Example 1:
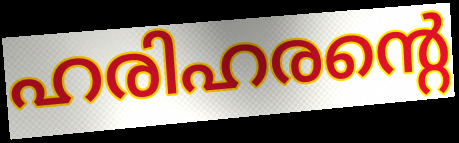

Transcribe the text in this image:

ഹരിഹരന്റെ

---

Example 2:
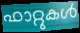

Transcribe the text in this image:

ഫാറ്റുകൾ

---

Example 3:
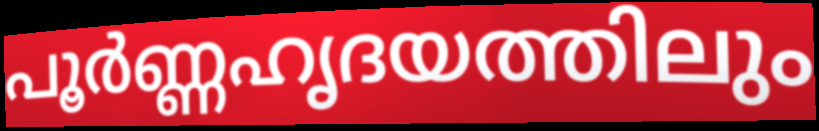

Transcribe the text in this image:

പൂർണ്ണഹൃദയത്തിലും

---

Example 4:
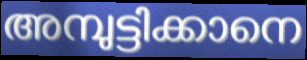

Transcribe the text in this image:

അമ്പുട്ടിക്കാനെ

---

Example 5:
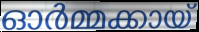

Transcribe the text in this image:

ഓർമ്മക്കായ്